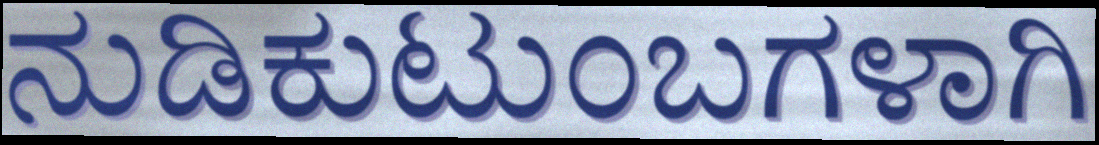
ನುಡಿಕುಟುಂಬಗಳಾಗಿ